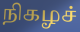
நிகழச்